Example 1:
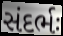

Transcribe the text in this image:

સંદર્ભઃ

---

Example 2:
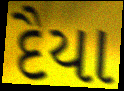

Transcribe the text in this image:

દૈયા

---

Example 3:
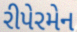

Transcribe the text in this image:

રીપેરમેન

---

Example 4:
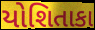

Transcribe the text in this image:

યોશિતાકા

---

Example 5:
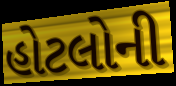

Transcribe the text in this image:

હોટલોની